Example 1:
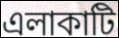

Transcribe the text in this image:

এলাকাটি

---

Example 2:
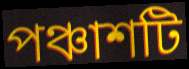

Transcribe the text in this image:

পঞ্চাশটি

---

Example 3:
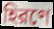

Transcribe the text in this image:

হিরণে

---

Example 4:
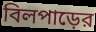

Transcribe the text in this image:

বিলপাড়ের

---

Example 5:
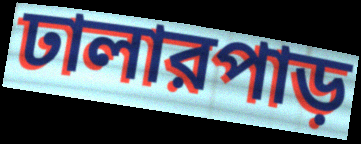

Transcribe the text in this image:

ঢালারপাড়